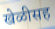
खेळीसह